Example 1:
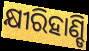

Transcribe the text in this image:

କ୍ଷୀରିହାଣ୍ଡି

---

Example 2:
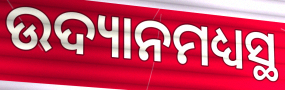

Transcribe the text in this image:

ଉଦ୍ୟାନମଧ୍ୟସ୍ଥ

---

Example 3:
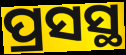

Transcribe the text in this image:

ପ୍ରସସ୍ଥ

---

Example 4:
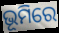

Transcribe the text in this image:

ଭୂମିରେ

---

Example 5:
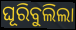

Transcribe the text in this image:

ଘୂରିବୁଲିଲା